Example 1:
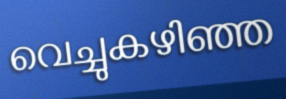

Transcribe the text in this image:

വെച്ചുകഴിഞ്ഞ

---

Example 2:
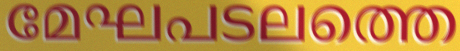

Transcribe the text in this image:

മേഘപടലത്തെ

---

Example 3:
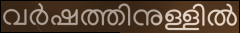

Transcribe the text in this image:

വർഷത്തിനുള്ളിൽ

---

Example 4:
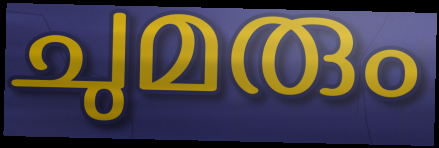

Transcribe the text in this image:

ചുമരും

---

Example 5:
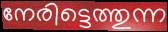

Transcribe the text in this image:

നേരിട്ടെത്തുന്ന